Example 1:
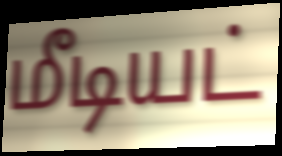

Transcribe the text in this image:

மீடியட்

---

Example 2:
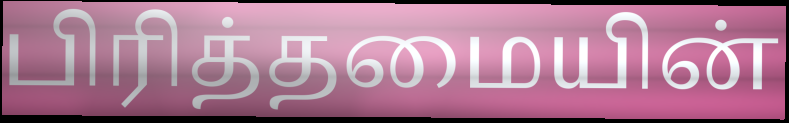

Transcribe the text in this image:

பிரித்தமையின்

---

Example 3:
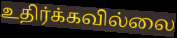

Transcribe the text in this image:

உதிர்க்கவில்லை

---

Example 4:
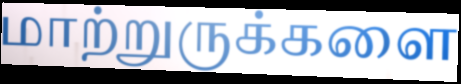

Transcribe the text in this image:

மாற்றுருக்களை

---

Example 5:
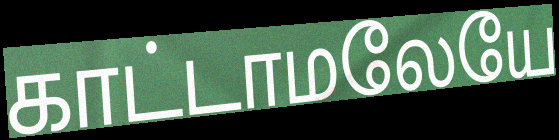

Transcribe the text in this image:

காட்டாமலேயே